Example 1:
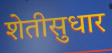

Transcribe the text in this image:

शेतीसुधार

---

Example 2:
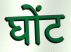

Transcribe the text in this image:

घोंट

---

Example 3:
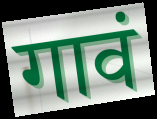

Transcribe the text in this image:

गावं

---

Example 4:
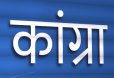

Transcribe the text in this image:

कांग्रा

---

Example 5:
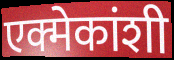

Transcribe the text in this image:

एक्मेकांशी